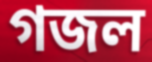
গজল